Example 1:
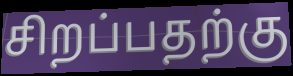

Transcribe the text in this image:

சிறப்பதற்கு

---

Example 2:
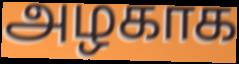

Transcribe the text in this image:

அழகாக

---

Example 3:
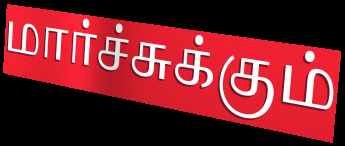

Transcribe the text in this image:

மார்ச்சுக்கும்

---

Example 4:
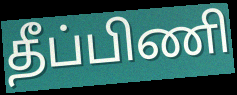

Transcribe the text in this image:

தீப்பிணி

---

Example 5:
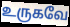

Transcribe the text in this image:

உருகவே